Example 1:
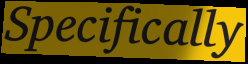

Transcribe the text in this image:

Specifically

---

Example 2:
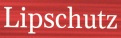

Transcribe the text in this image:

Lipschutz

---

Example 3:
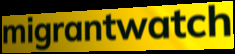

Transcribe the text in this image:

migrantwatch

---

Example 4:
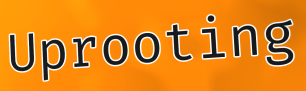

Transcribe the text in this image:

Uprooting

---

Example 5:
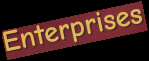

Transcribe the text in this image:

Enterprises